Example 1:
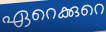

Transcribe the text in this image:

ഏറെക്കുറെ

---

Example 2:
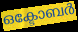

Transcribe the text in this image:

ഒക്ടോബർ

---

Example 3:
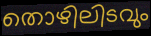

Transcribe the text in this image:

തൊഴിലിടവും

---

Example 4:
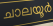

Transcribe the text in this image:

ചാലയൂർ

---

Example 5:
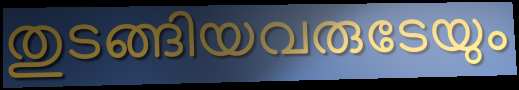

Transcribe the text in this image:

തുടങ്ങിയവരുടേയും